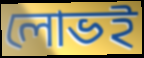
লোভই